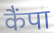
कैंपा